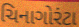
ચિનાગોરંટા